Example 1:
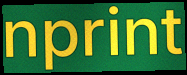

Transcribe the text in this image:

nprint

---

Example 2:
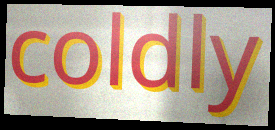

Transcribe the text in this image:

coldly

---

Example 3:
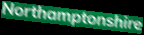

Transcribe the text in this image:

Northamptonshire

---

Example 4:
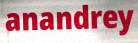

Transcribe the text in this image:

anandrey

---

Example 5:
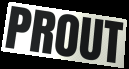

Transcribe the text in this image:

PROUT